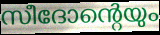
സീദോന്റെയും